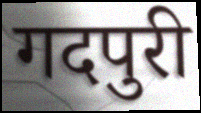
गदपुरी